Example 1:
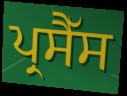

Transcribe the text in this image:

ਪ੍ਰਸੈੱਸ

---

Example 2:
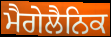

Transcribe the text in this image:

ਮੈਗੇਲੈਨਿਕ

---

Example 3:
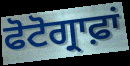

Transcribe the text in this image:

ਫੋਟੋਗ੍ਰਾਫ਼ਾਂ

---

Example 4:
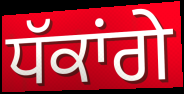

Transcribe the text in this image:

ਧੱਕਾਂਗੇ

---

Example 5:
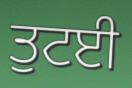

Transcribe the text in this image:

ਤੁਟਈ